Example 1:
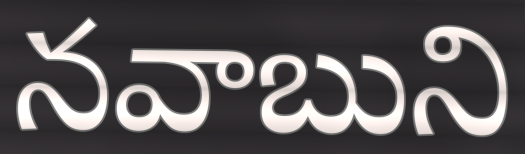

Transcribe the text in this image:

నవాబుని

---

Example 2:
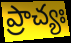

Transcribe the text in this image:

ప్రాచ్యః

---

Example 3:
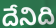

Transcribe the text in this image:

దేనిది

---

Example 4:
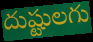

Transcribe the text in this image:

దుష్టులగు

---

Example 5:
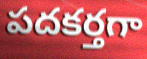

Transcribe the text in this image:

పదకర్తగా